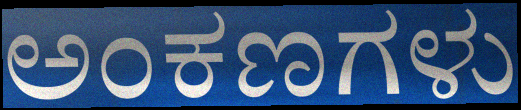
ಅಂಕಣಗಳು